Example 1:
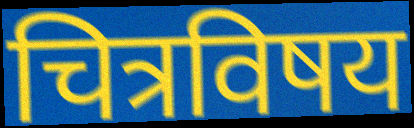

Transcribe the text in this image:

चित्रविषय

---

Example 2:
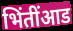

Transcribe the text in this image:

भिंतींआड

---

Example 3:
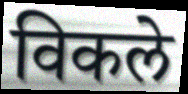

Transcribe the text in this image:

विकले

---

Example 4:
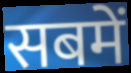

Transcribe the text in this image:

सबमें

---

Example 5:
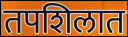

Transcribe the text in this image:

तपशिलात